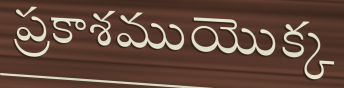
ప్రకాశముయొక్క